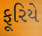
ફૂરિયે